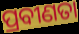
ପ୍ରବୀଣତା